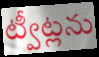
ట్వీట్లను